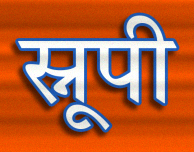
स्नूपी